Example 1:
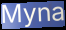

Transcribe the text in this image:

Myna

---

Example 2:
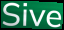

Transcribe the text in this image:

Sive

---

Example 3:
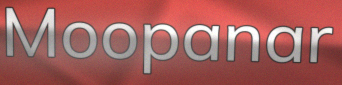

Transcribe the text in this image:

Moopanar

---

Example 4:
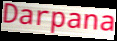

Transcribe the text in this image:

Darpana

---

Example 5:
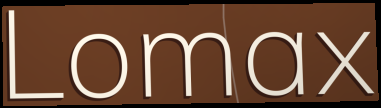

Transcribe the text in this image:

Lomax